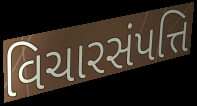
વિચારસંપત્તિ